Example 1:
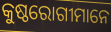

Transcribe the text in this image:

କୁଷ୍ଠରୋଗୀମାନେ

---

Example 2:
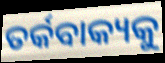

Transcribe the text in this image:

ତର୍କବାକ୍ୟକୁ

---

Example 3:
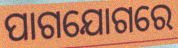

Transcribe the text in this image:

ପାଗଯୋଗରେ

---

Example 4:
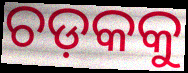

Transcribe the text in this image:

ଚଡ଼କକୁ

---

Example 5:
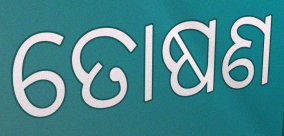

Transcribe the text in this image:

ତୋଷଣ